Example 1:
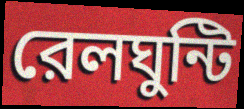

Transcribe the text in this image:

রেলঘুন্টি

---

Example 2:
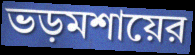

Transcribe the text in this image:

ভড়মশায়ের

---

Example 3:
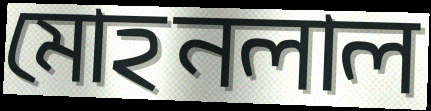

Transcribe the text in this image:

মোহনলাল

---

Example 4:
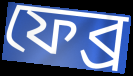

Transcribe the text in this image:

ফেব্র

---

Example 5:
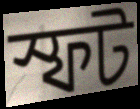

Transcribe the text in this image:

স্ফট